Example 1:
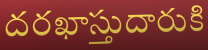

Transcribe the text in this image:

దరఖాస్తుదారుకి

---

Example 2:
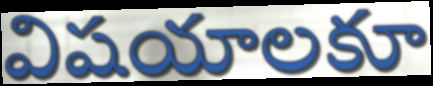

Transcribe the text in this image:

విషయాలకూ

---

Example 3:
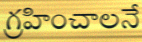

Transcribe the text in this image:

గ్రహించాలనే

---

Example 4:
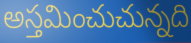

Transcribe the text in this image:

అస్తమించుచున్నది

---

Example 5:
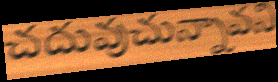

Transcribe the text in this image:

చదువుచున్నావని